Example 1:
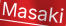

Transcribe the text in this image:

Masaki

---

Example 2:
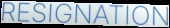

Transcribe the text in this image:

RESIGNATION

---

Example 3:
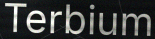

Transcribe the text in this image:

Terbium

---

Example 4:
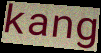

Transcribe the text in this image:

kang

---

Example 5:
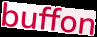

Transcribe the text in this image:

buffon